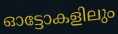
ഓട്ടോകളിലും